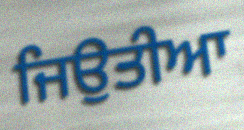
ਜਿਉਤੀਆ